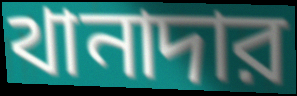
থানাদার